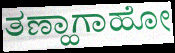
ತಣ್ಹಾಗಾಹೋ